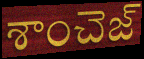
శాంచెజ్